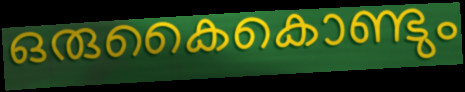
ഒരുകൈകൊണ്ടും